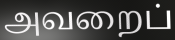
அவறைப்